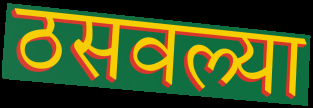
ठसवल्या